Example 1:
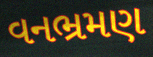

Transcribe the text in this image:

વનભ્રમણ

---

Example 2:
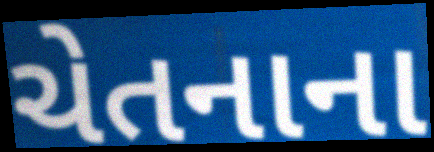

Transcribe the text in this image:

ચેતનાના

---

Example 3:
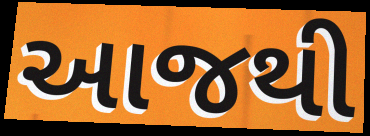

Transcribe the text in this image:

આજથી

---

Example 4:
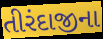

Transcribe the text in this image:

તીરંદાજીના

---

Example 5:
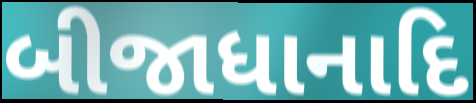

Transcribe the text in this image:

બીજાધાનાદિ